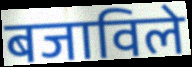
बजाविले